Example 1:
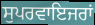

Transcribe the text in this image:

ਸੁਪਰਵਾਇਜਰਾਂ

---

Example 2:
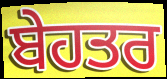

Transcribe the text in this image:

ਬੇਹਤਰ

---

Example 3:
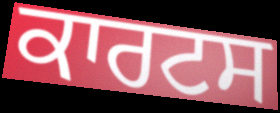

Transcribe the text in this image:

ਕਾਰਟਸ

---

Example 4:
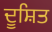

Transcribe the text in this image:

ਦੂਸ਼ਿਤ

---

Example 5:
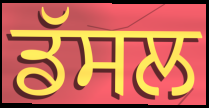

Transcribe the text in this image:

ਡੱਸਲ